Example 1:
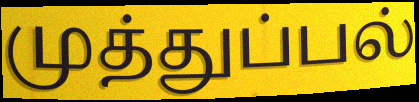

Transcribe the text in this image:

முத்துப்பல்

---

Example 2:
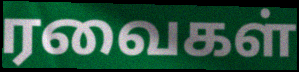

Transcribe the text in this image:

ரவைகள்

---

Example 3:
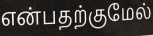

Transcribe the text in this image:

என்பதற்குமேல்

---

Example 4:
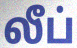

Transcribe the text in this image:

லீப்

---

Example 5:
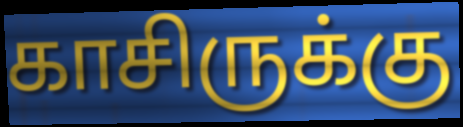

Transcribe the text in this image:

காசிருக்கு